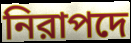
নিরাপদে